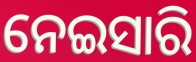
ନେଇସାରି